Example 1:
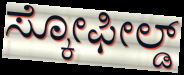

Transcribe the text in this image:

ಸ್ಕೋಫೀಲ್ಡ್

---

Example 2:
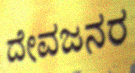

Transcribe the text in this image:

ದೇವಜನರ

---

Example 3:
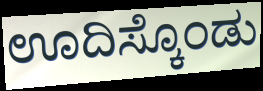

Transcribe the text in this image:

ಊದಿಸ್ಕೊಂಡು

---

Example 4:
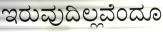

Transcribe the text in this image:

ಇರುವುದಿಲ್ಲವೆಂದೂ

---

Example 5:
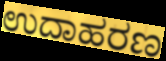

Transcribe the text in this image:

ಉದಾಹರಣ